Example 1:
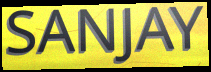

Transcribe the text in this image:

SANJAY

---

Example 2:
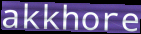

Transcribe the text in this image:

akkhore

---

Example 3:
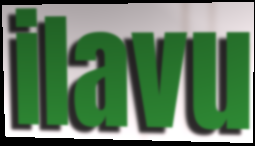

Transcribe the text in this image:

ilavu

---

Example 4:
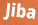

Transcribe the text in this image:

Jiba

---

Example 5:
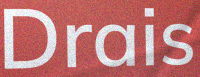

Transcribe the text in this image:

Drais